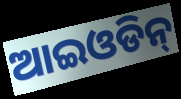
ଆଇଓଡିନ୍